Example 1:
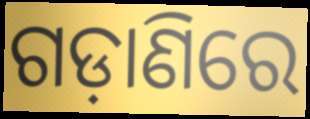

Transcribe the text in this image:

ଗଡ଼ାଣିରେ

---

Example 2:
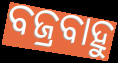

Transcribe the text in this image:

ବଜ୍ରବାହୁ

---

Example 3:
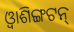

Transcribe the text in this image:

ଓ୍ୱାଶିଙ୍ଗଟନ୍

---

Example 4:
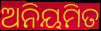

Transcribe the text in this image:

ଅନିୟମିତ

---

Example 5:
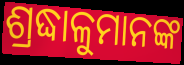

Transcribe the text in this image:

ଶ୍ରଦ୍ଧାଳୁମାନଙ୍କ